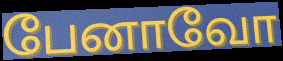
பேனாவோ